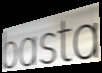
basta